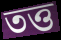
তত্ত